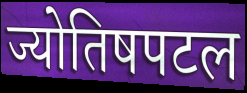
ज्योतिषपटल